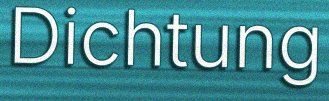
Dichtung